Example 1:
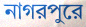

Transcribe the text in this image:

নাগরপুরে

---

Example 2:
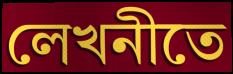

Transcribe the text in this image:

লেখনীতে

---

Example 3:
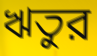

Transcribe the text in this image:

ঋতুর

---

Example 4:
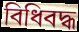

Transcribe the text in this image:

বিধিবদ্ধ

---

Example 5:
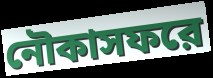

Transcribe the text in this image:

নৌকাসফরে